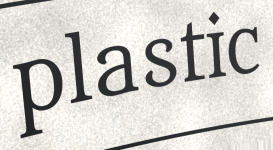
plastic